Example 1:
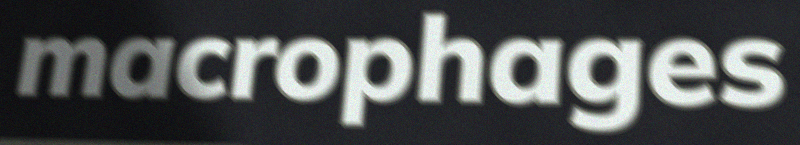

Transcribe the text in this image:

macrophages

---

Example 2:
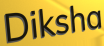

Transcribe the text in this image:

Diksha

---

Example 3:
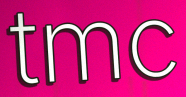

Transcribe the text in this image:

tmc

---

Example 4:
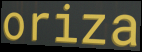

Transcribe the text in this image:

oriza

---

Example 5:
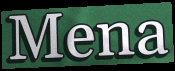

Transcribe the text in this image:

Mena